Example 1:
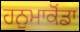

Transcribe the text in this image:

ਹਨੁਮਾਕੋਂਡਾ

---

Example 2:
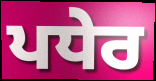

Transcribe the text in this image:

ਪਧੇਰ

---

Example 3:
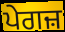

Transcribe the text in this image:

ਪੇਗਜ਼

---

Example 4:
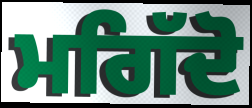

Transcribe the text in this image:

ਮਗਿੱਦੋ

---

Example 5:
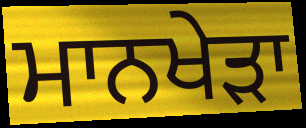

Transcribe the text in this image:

ਮਾਨਖੇੜਾ